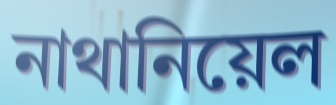
নাথানিয়েল